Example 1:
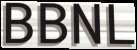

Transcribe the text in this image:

BBNL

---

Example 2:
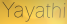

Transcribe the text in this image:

Yayathi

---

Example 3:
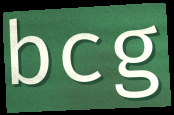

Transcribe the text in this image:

bcg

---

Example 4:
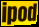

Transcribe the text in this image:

ipod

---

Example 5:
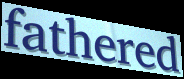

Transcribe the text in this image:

fathered